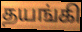
தயங்கி